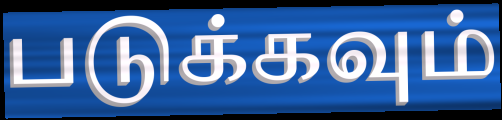
படுக்கவும்